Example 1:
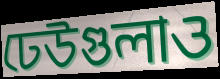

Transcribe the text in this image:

ঢেউগুলাও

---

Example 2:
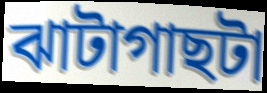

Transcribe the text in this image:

ঝাটাগাছটা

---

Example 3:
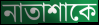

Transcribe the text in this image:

নাতাশাকে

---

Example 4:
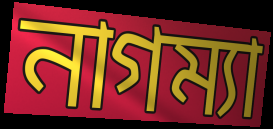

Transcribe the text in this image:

নাগম্যা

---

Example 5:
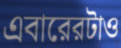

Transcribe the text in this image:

এবারেরটাও